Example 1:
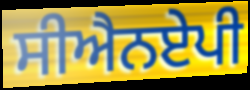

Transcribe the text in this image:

ਸੀਐਨਏਪੀ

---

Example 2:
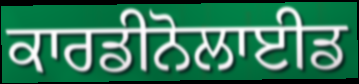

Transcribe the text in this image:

ਕਾਰਡੀਨੋਲਾਈਡ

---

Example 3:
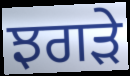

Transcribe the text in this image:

ਝਗਡ਼ੇ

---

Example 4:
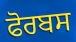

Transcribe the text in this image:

ਫੋਰਬਸ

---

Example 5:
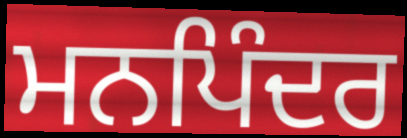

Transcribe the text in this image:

ਮਨਪਿੰਦਰ